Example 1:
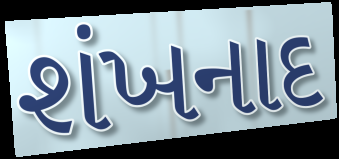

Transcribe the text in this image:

શંખનાદ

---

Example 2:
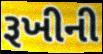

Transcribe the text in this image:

રૂખીની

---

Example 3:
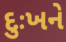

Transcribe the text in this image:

દુઃખને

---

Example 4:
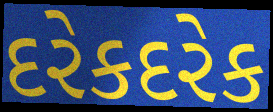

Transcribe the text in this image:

દરેકદરેક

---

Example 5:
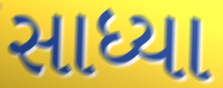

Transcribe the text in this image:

સાધ્યા